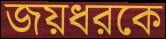
জয়ধরকে